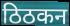
ठिठकन